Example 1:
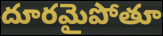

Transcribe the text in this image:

దూరమైపోతూ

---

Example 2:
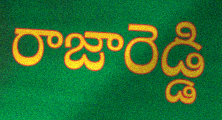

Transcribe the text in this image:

రాజారెడ్డి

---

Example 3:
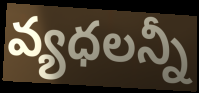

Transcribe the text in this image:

వ్యధలన్నీ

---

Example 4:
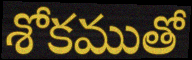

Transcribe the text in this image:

శోకముతో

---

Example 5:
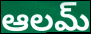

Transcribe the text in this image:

ఆలమ్